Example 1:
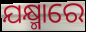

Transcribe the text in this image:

ଯକ୍ଷ୍ମାରେ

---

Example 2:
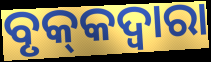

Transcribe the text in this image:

ବୃକ୍‌କଦ୍ଵାରା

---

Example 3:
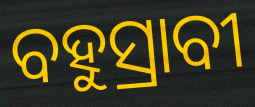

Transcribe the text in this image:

ବହୁସ୍ରାବୀ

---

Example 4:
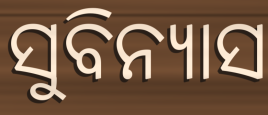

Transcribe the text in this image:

ସୁବିନ୍ୟାସ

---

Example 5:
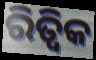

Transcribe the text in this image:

ରିତ୍ୱିକ